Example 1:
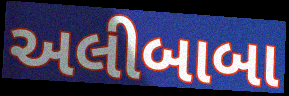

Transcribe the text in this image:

અલીબાબા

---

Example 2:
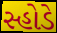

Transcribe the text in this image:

સ્હોડે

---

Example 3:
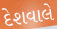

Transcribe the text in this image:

દેશવાલે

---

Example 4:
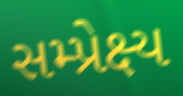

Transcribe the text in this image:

સમ્પ્રેક્ષ્ય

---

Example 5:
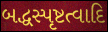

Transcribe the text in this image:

બદ્ધસ્પૃષ્ટત્વાદિ